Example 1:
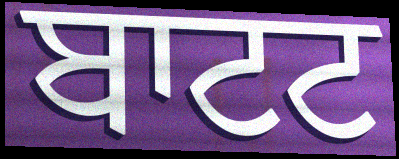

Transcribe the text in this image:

ਬਾਟਟ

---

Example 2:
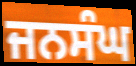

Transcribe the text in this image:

ਜਨਸੰਘ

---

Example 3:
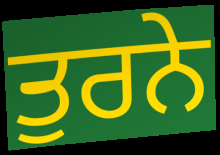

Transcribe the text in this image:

ਤੁਰਨੇ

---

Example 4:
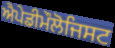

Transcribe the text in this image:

ਐਪੇਡੀਮੌਲੋਜਿਸਟ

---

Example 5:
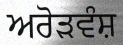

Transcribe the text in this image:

ਅਰੋੜਵੰਸ਼